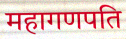
महागणपति